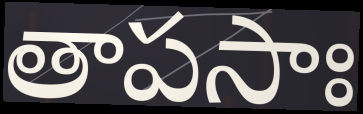
తాపసాః